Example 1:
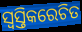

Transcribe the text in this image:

ସ୍ୱସ୍ତିକରେଚିତ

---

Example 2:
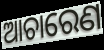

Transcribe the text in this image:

ଆଚାରେଣ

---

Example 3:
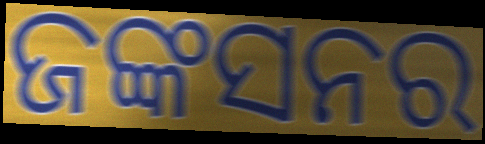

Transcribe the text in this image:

ଜଙ୍କସନର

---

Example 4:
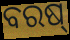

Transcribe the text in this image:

ବରଷ୍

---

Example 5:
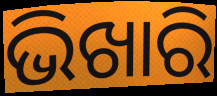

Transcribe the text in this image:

ଭିଖାରି